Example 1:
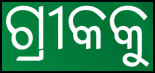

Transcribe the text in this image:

ଗ୍ରୀକକୁ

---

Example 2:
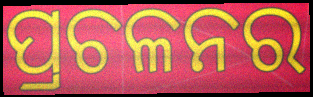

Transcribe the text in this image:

ପ୍ରଚଳନର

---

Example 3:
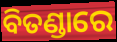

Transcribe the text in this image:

ବିତଣ୍ଡାରେ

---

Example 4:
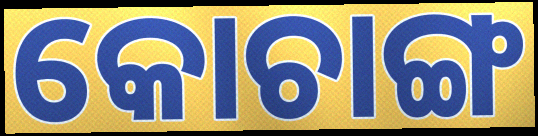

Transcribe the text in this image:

କୋଚାଙ୍ଗ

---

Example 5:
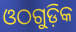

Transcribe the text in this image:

ଓଠଗୁଡ଼ିକ